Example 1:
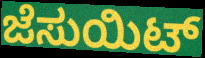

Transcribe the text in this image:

ಜೆಸುಯಿಟ್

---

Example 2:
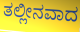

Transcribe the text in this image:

ತಲ್ಲೀನವಾದ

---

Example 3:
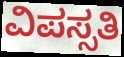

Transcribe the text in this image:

ವಿಪಸ್ಸತಿ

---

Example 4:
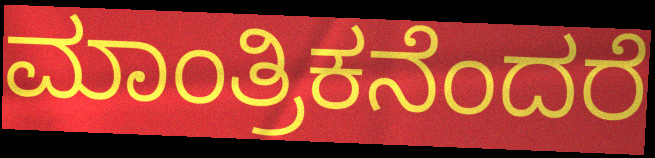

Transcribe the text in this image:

ಮಾಂತ್ರಿಕನೆಂದರೆ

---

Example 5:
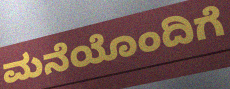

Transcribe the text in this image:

ಮನೆಯೊಂದಿಗೆ